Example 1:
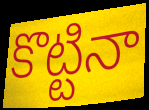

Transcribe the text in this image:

కొట్టినా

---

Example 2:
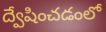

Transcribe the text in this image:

ద్వేషించడంలో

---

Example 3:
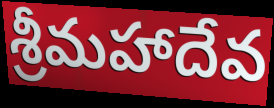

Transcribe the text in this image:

శ్రీమహాదేవ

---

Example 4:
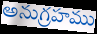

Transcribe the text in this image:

అనుగ్రహము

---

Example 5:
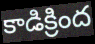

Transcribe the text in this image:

కాడిక్రింద